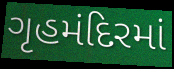
ગૃહમંદિરમાં